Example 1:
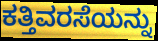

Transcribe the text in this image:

ಕತ್ತಿವರಸೆಯನ್ನು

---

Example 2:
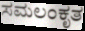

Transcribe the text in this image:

ಸಮಲಂಕೃತ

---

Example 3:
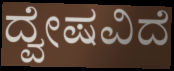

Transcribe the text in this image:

ದ್ವೇಷವಿದೆ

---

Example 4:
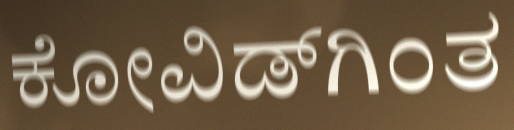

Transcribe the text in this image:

ಕೋವಿಡ್‌ಗಿಂತ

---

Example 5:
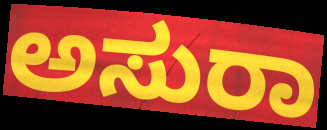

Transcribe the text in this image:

ಅಸುರಾ